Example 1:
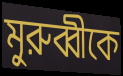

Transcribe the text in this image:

মুরুব্বীকে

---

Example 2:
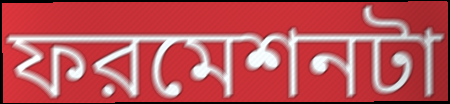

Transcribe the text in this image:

ফরমেশনটা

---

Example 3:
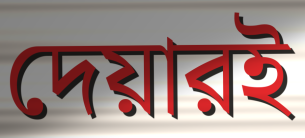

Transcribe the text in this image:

দেয়ারই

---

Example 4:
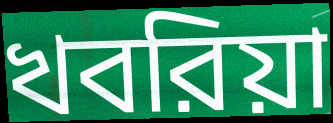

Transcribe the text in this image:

খবরিয়া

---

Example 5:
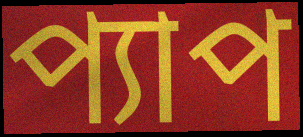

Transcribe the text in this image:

প্যাপ